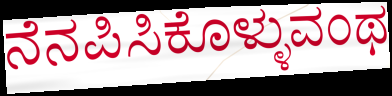
ನೆನಪಿಸಿಕೊಳ್ಳುವಂಥ